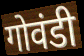
गोवंडी